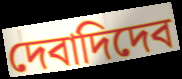
দেবাদিদেব